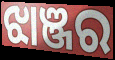
ଝାଞ୍ଜର